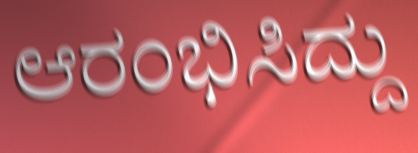
ಆರಂಭಿಸಿದ್ದು